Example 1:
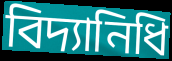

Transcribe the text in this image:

বিদ্যানিধি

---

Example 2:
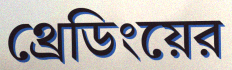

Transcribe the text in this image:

থ্রেডিংয়ের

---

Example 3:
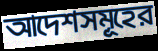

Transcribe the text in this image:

আদেশসমূহের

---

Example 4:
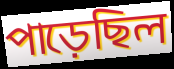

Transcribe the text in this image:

পাড়েছিল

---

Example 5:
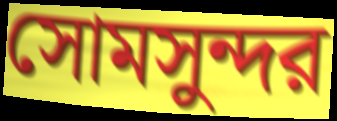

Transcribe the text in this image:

সোমসুন্দর